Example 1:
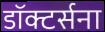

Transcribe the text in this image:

डॉक्टर्सना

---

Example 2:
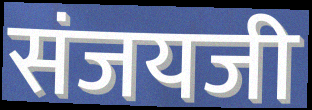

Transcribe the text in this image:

संजयजी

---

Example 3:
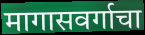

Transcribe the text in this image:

मागासवर्गाचा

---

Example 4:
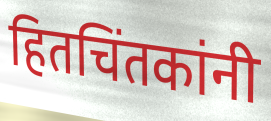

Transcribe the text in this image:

हितचिंतकांनी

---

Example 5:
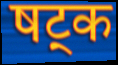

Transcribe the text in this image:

षट्क